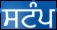
ਸਟੰਪ